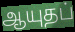
ஆயுதப்